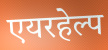
एयरहेल्प